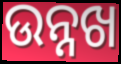
ଉନ୍ନଖ